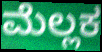
ಮೆಲ್ಲಕ